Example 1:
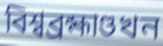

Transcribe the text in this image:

বিশ্বব্ৰহ্মাণ্ডখন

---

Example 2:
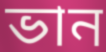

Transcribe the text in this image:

ভান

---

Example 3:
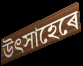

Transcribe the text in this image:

উৎসাহেৰে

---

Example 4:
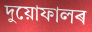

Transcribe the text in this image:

দুয়োফালৰ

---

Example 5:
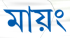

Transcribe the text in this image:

মায়ং